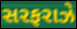
સરફરાઝે